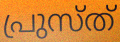
പ്രുസ്ത്